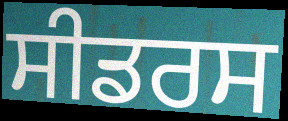
ਸੀਡਰਸ